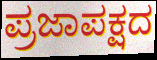
ಪ್ರಜಾಪಕ್ಷದ